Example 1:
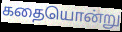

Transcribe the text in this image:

கதையொன்று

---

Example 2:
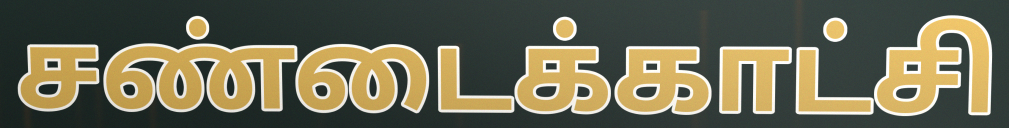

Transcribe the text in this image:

சண்டைக்காட்சி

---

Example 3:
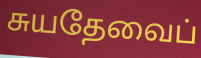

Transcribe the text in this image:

சுயதேவைப்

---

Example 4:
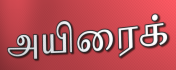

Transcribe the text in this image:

அயிரைக்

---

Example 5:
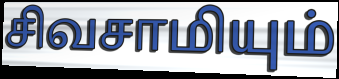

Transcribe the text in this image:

சிவசாமியும்